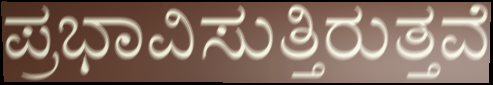
ಪ್ರಭಾವಿಸುತ್ತಿರುತ್ತವೆ